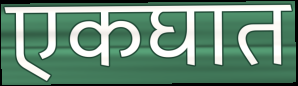
एकघात